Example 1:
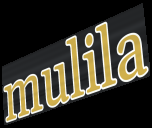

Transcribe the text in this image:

mulila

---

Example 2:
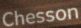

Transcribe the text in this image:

Chesson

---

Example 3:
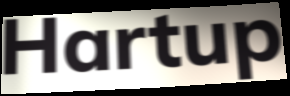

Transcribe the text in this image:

Hartup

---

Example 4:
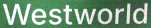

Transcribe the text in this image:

Westworld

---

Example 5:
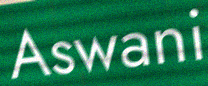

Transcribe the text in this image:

Aswani